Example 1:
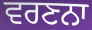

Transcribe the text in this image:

ਵਰਣਨਾ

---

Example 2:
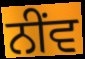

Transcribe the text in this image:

ਨੀਂਵ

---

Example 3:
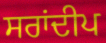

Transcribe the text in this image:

ਸਰਾਂਦੀਪ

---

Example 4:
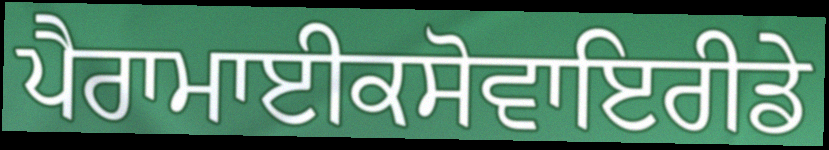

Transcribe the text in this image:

ਪੈਰਾਮਾਈਕਸੋਵਾਇਰੀਡੇ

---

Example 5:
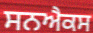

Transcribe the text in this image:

ਸਨਐਕਸ